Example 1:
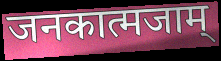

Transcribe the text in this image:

जनकात्मजाम्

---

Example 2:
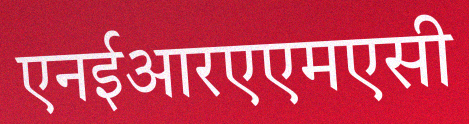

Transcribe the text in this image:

एनईआरएएमएसी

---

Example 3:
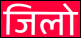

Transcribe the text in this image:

जिलो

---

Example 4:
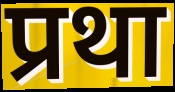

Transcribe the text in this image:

प्रथा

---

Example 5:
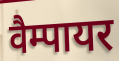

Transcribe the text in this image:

वैम्पायर